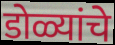
डोळ्यांचे